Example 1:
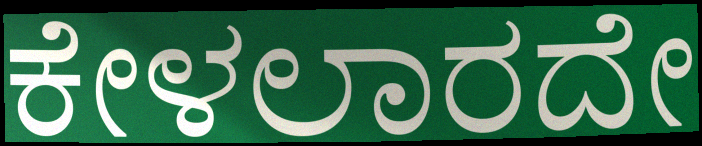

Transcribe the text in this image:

ಕೇಳಲಾರದೇ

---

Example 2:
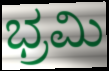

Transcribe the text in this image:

ಭ್ರಮಿ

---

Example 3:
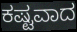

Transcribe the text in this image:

ಕಷ್ಟವಾದ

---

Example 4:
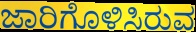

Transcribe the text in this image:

ಜಾರಿಗೊಳಿಸಿರುವ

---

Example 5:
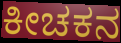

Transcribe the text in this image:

ಕೀಚಕನ